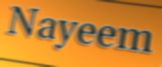
Nayeem